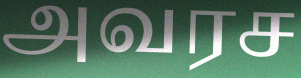
அவரச